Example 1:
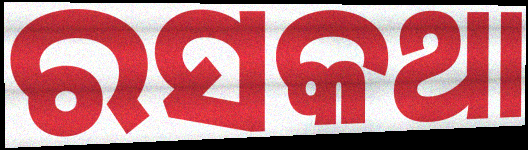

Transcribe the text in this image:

ରସକଥା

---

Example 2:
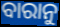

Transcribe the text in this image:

ବାରାନୁ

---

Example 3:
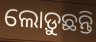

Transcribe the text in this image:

ଲୋଡ଼ୁଛନ୍ତି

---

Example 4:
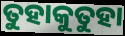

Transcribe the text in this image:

ତୁହାକୁତୁହା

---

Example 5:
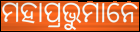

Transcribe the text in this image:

ମହାପ୍ରଭୁମାନେ